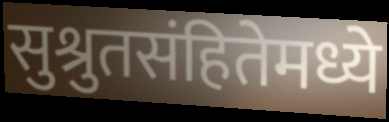
सुश्रुतसंहितेमध्ये